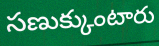
సణుక్కుంటారు